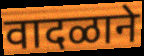
वादळाने